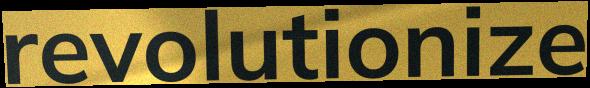
revolutionize